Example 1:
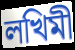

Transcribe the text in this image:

লখিমী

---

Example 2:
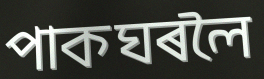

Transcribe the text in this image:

পাকঘৰলৈ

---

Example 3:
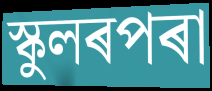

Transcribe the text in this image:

স্কুলৰপৰা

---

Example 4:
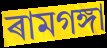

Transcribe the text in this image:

ৰামগঙ্গা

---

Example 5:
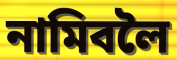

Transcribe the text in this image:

নামিবলৈ